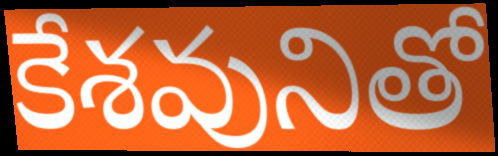
కేశవునితో